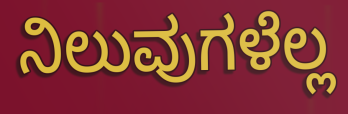
ನಿಲುವುಗಳೆಲ್ಲ